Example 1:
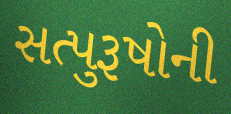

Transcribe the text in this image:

સત્પુરૂષોની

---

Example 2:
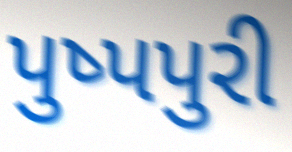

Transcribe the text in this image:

પુષ્પપુરી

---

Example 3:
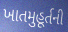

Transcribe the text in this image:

ખાતમુહૂર્તની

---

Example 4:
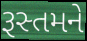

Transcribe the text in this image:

રૂસ્તમને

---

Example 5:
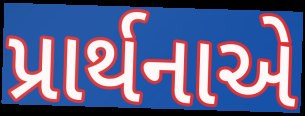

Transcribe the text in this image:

પ્રાર્થનાએ